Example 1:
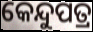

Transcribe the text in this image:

କେନ୍ଦୁପତ୍ର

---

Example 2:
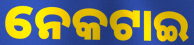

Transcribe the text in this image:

ନେକଟାଇ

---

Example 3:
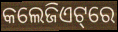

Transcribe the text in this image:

କଲେଜିଏଟ୍‌ରେ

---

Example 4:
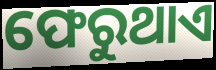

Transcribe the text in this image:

ଫେରୁଥାଏ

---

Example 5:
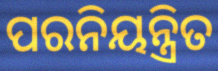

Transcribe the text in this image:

ପରନିୟନ୍ତ୍ରିତ